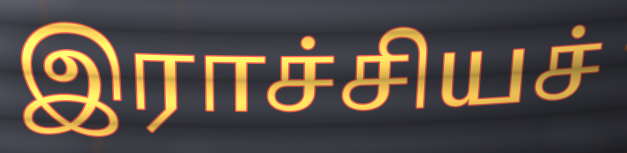
இராச்சியச்